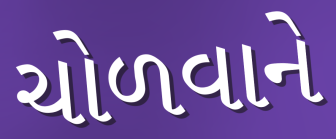
ચોળવાને